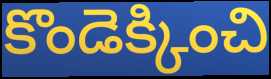
కొండెక్కించి